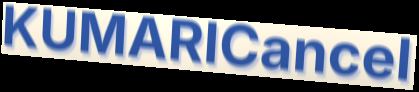
KUMARICancel